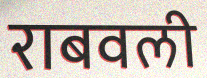
राबवली